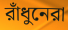
রাঁধুনেরা